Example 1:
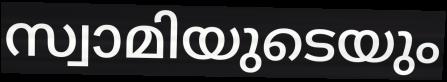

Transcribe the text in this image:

സ്വാമിയുടെയും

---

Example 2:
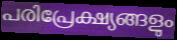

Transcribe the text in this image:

പരിപ്രേക്ഷ്യങ്ങളും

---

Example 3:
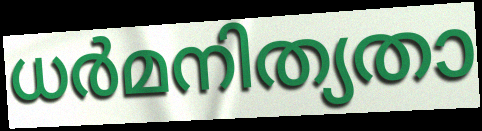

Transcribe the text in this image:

ധർമനിത്യതാ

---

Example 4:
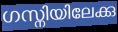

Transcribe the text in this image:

ഗസ്നിയിലേക്കു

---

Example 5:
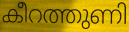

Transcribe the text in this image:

കീറത്തുണി